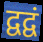
द्वद्वं